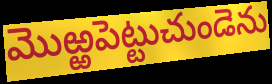
మొఱ్ఱపెట్టుచుండెను